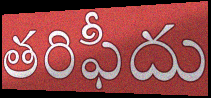
తరిఫీదు